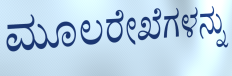
ಮೂಲರೇಖೆಗಳನ್ನು